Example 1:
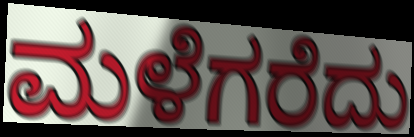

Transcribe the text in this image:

ಮಳೆಗರೆದು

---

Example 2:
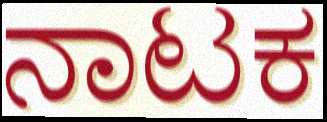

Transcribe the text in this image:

ನಾಟಕ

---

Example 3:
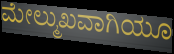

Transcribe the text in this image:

ಮೇಲ್ಮುಖವಾಗಿಯೂ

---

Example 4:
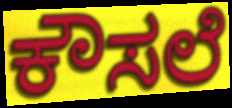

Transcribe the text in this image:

ಕೌಸಲೆ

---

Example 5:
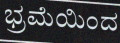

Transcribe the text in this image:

ಭ್ರಮೆಯಿಂದ